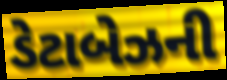
ડેટાબેઝની